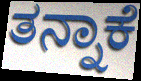
ತನ್ನಾಕೆ